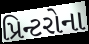
પ્રિન્ટરોના